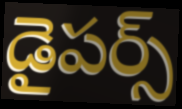
డైపర్స్